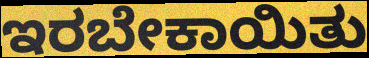
ಇರಬೇಕಾಯಿತು